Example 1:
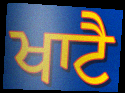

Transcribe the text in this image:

ਖਾਟੈ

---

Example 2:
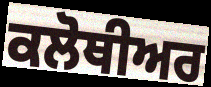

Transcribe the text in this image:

ਕਲੋਥੀਅਰ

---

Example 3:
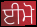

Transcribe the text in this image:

ਈਮੋ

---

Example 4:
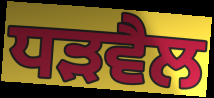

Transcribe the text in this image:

ਧੜਵੈਲ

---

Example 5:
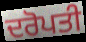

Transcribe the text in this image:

ਦਰੋਪਤੀ